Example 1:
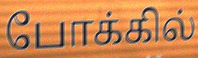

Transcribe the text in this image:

போக்கில்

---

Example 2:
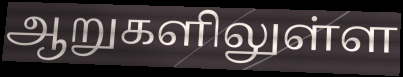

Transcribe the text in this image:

ஆறுகளிலுள்ள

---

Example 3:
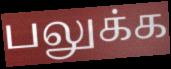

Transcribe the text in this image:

பலுக்க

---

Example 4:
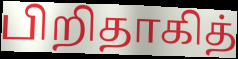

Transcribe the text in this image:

பிறிதாகித்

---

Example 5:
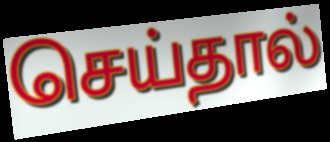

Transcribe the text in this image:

செய்தால்